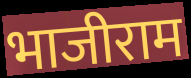
भाजीराम